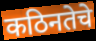
कठिनतेचे